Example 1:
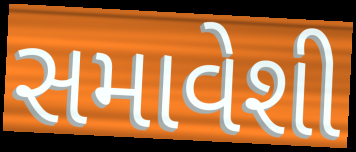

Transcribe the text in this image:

સમાવેશી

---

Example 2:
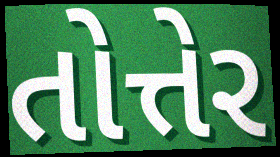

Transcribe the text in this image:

તોત્તેર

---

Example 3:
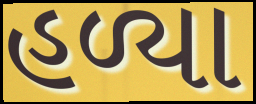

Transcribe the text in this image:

હળ્યા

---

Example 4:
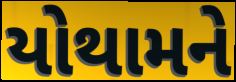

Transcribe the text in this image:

યોથામને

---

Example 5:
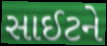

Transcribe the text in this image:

સાઈટને